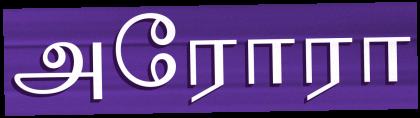
அரோரா